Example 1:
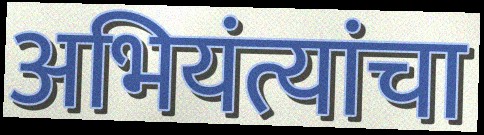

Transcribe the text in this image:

अभियंत्यांचा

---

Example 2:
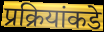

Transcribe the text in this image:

प्रक्रियांकडे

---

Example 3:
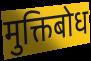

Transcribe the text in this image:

मुक्तिबोध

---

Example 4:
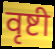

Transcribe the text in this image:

वृष्टी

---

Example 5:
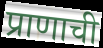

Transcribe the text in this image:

प्राणाची